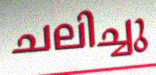
ചലിച്ചു